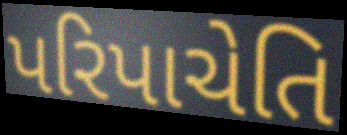
પરિપાચેતિ